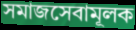
সমাজসেবামূলক